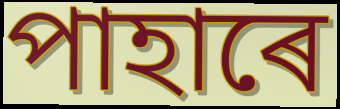
পাহাৰে